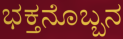
ಭಕ್ತನೊಬ್ಬನ